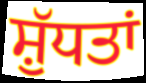
ਸ਼ੁੱਧਤਾਂ